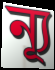
ন্যূ